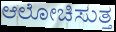
ಆಲೋಚಿಸುತ್ತ